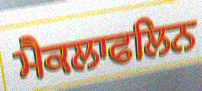
ਮੈਕਲਾਫਲਿਨ